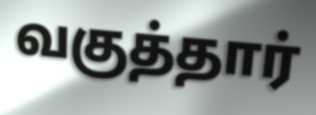
வகுத்தார்